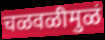
चळवळीमुळं